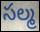
సల్మ